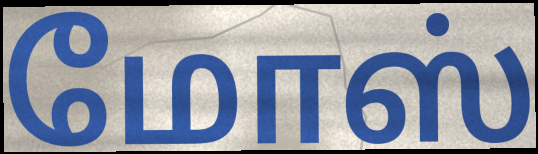
மோஸ்